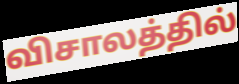
விசாலத்தில்